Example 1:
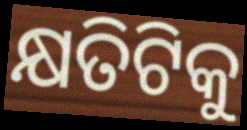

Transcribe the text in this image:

କ୍ଷତିଟିକୁ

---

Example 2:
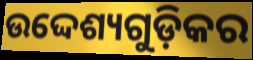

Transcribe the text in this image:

ଉଦ୍ଦେଶ୍ୟଗୁଡ଼ିକର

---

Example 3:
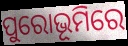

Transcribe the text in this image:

ପୁରୋଭୂମିରେ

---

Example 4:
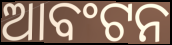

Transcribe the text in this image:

ଆବଂଟନ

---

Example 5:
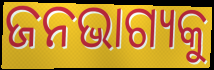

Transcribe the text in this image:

ଜନଭାଗ୍ୟକୁ